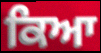
ਕਿਆ